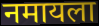
नमायला